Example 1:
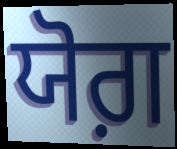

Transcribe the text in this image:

ਯੋਗ਼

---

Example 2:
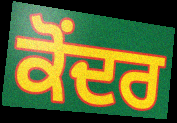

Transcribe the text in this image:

ਕੋਂਦਰ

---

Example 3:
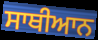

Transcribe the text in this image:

ਸਾਥੀਆਨ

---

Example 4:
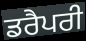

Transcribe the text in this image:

ਡਰੈਪਰੀ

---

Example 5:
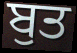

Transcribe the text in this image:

ਬੁਤ